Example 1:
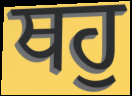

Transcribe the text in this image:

ਥਹੁ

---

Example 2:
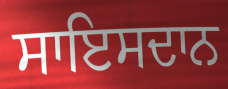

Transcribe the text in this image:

ਸਾਇਸਦਾਨ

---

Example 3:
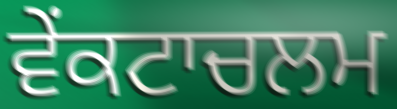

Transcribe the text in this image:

ਵੇਂਕਟਾਚਲਮ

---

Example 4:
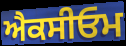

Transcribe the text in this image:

ਐਕਸੀਓਮ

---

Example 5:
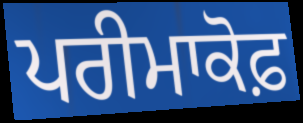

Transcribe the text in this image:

ਪਰੀਮਾਕੋਫ਼